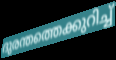
ദുരന്തത്തെക്കുറിച്ച്